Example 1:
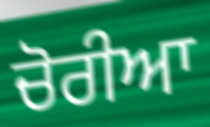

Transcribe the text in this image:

ਚੋਰੀਆ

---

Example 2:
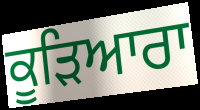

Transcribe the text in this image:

ਕੂੜਿਆਰਾ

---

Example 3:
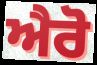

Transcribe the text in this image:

ਐਰੋ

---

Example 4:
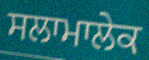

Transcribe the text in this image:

ਸਲਾਮਾਲੇਕ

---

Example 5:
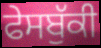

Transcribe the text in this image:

ਫੇਸਬੁੱਕੀ